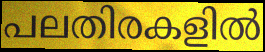
പലതിരകളിൽ